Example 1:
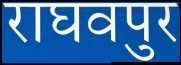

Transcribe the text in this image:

राघवपुर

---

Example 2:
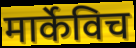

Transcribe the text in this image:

मार्केविच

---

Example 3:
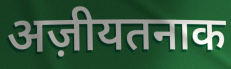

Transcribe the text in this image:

अज़ीयतनाक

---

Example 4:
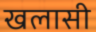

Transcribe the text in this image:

खलासी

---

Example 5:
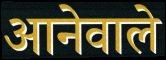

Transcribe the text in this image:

आनेवाले